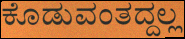
ಕೊಡುವಂತದ್ದಲ್ಲ